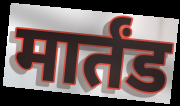
मार्तंड